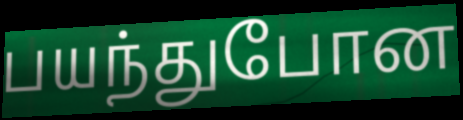
பயந்துபோன